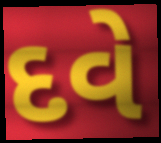
દવે